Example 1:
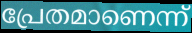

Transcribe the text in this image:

പ്രേതമാണെന്ന്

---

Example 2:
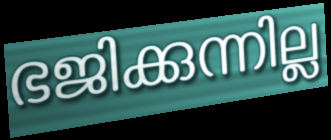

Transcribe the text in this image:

ഭജിക്കുന്നില്ല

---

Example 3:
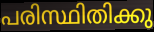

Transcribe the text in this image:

പരിസ്ഥിതിക്കു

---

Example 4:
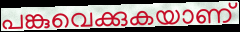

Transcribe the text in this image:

പങ്കുവെക്കുകയാണ്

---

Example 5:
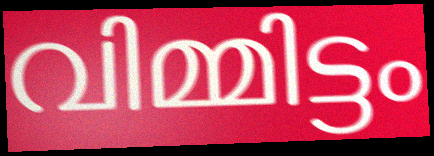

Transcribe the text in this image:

വിമ്മിട്ടം